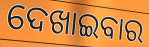
ଦେଖାଇବାର